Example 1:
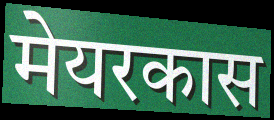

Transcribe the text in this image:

मेयरकास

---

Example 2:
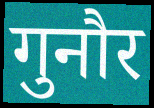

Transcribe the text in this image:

गुनौर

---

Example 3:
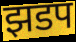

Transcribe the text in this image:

झडप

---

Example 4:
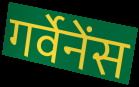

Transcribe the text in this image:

गर्वेनेंस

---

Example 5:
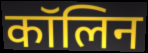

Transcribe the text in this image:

कॉलिन